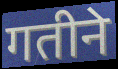
गतीने